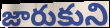
జారుకుని